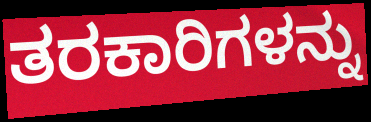
ತರಕಾರಿಗಳನ್ನು